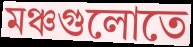
মঞ্চগুলোতে